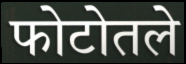
फोटोतले